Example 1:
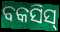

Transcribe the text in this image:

ବକସିସ୍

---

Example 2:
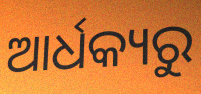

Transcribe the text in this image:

ଆର୍ଧକ୍ୟରୁ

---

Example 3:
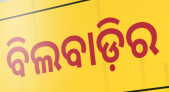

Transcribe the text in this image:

ବିଲବାଡ଼ିର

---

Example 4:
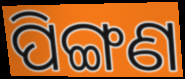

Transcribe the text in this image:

ପିଙ୍ଗଣ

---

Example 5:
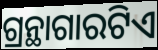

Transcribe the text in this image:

ଗ୍ରନ୍ଥାଗାରଟିଏ